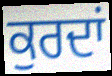
ਕੁਰਦਾਂ